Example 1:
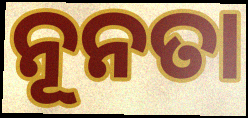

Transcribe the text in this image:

ନୂନତା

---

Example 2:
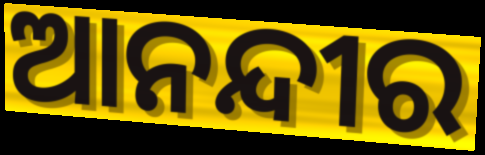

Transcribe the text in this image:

ଆନନ୍ଦୀର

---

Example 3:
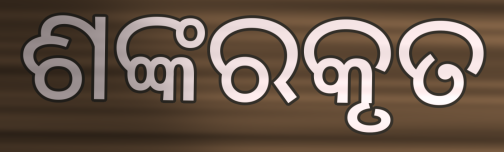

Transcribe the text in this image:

ଶଙ୍କରକୃତ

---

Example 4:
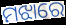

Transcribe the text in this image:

ମଝାରେ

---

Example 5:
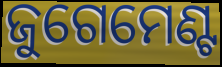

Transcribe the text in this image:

ଜୁଗେମେଣ୍ଟ